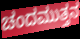
ಚಂದಮುತ್ತನ